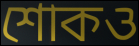
শোকও